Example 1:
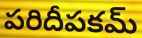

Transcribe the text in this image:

పరిదీపకమ్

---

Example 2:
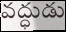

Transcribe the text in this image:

వద్ధుడు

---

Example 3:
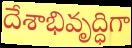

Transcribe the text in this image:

దేశాభివృద్ధిగా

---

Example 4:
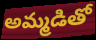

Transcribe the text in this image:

అమ్మడితో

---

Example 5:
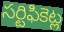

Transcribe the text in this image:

సర్టిఫికెట్ల